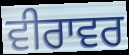
ਵੀਰਾਵਰ